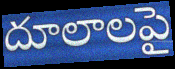
దూలాలపై